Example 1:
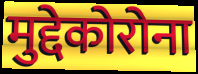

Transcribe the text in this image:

मुद्देकोरोना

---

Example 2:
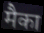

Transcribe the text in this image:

मैका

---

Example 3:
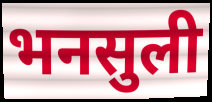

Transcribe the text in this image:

भनसुली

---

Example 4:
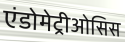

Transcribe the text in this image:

एंडोमेट्रीओसिस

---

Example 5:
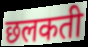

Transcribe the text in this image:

छलकती